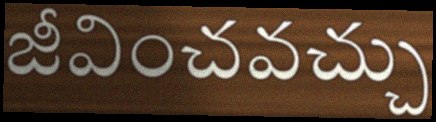
జీవించవచ్చు